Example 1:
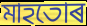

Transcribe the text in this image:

মাহতোৰ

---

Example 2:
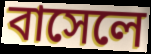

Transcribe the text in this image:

বাসেলে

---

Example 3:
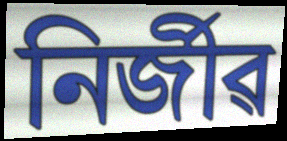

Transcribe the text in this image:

নিৰ্জীৱ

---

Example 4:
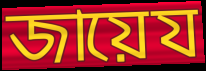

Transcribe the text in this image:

জায়েয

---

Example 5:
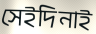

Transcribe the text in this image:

সেইদিনাই